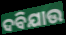
ଦବିଯାଉ